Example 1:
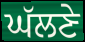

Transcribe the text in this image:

ਘੱਲਣੇ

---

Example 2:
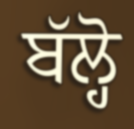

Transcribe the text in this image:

ਬੱਲ੍ਹੋ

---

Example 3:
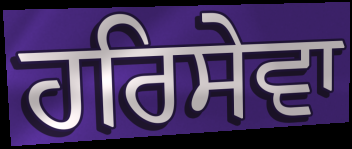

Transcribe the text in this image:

ਹਰਿਸੇਵਾ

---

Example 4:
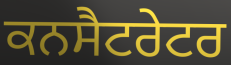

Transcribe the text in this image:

ਕਨਸੈਟਰੇਟਰ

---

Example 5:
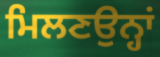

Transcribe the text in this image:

ਮਿਲਣਉਨ੍ਹਾਂ